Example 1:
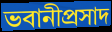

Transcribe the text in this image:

ভবানীপ্রসাদ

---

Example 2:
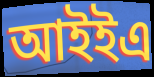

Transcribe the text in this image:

আইইএ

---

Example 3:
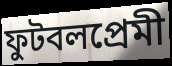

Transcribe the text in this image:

ফুটবলপ্রেমী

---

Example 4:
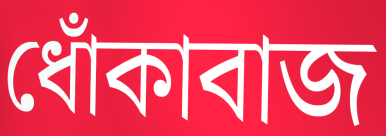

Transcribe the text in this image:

ধোঁকাবাজ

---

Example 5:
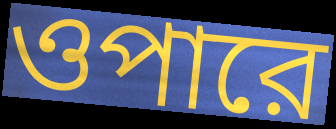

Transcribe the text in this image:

ওপারে